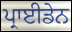
ਪ੍ਰਾਈਡੇਨ